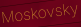
Moskovsky